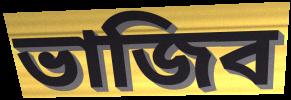
ভাজিব